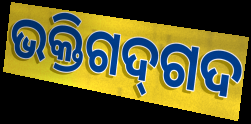
ଭକ୍ତିଗଦ୍‌ଗଦ